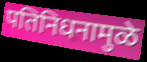
पतिनिधनामुळे